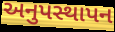
અનુપસ્થાપન